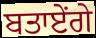
ਬਤਾਏਂਗੇ